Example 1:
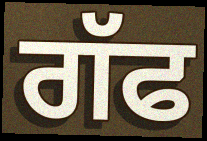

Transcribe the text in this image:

ਗੱਫ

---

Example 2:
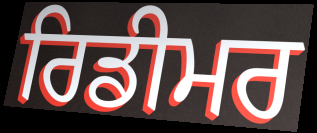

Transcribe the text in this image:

ਰਿਡੀਮਰ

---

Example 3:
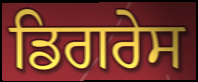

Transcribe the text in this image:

ਡਿਗਰੇਸ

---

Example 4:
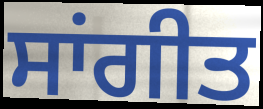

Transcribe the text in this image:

ਸਾਂਗੀਤ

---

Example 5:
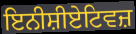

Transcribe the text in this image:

ਇਨੀਸ਼ੀਏਟਿਵਜ਼